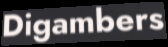
Digambers